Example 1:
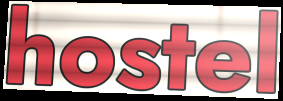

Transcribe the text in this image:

hostel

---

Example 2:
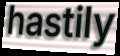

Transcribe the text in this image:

hastily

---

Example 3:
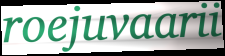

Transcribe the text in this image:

roejuvaarii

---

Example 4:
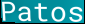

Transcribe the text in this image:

Patos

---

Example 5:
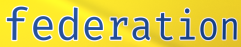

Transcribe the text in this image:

federation